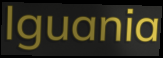
Iguania